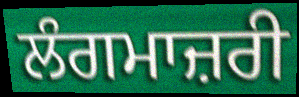
ਲੰਗਮਾਜ਼ਰੀ